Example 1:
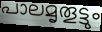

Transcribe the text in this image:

പാലമൃതൂട്ടും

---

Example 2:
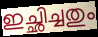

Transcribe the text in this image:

ഇച്ഛിച്ചതും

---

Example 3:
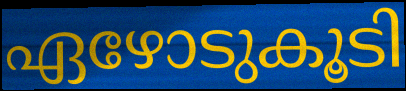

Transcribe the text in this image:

ഏഴോടുകൂടി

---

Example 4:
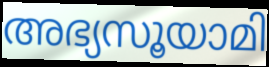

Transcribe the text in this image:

അഭ്യസൂയാമി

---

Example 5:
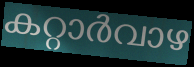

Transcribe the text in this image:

കറ്റാർവാഴ